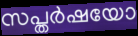
സപ്തർഷയോ